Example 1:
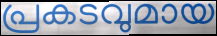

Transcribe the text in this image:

പ്രകടവുമായ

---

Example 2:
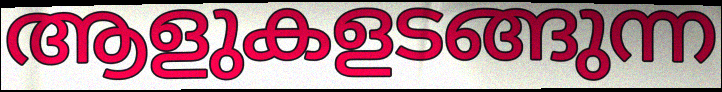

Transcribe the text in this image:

ആളുകളടങ്ങുന്ന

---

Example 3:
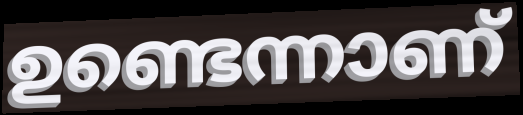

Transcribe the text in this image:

ഉണ്ടെന്നാണ്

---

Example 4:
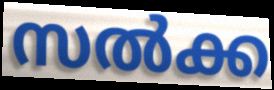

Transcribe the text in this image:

സൽക്ക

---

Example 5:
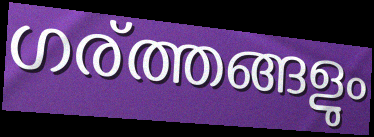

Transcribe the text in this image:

ഗര്ത്തങ്ങളും